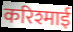
करिश्माई